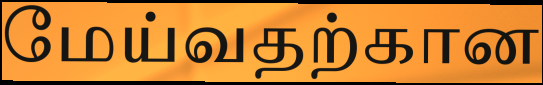
மேய்வதற்கான